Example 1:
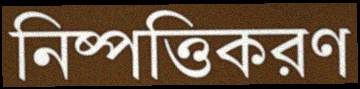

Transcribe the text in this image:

নিষ্পত্তিকরণ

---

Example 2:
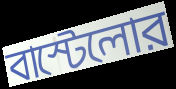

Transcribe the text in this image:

বাস্টেলোর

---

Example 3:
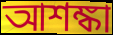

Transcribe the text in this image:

আশঙ্কা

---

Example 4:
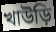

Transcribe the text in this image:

খাউড়ি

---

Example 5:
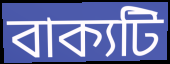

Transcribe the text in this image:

বাক্যটি